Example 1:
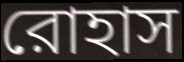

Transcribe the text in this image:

রোহাস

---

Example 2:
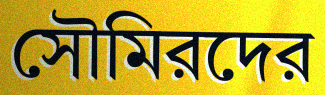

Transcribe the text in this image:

সৌমিরদের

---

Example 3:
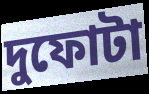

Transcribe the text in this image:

দুফোটা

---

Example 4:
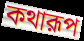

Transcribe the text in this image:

কথারূপ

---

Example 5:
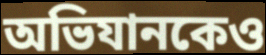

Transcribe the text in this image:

অভিযানকেও